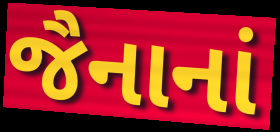
જૈનાનાં